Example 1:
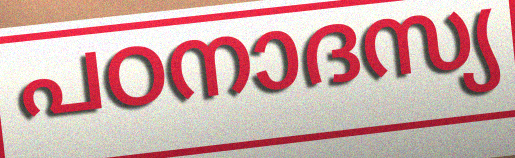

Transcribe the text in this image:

പഠനാദസ്യ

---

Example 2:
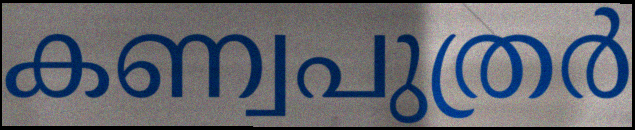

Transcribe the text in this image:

കണ്വപുത്രർ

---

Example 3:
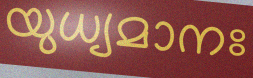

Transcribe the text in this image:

യുധ്യമാനഃ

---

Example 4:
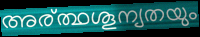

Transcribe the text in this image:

അര്ത്ഥശൂന്യതയും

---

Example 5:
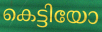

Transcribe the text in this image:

കെട്ടിയോ